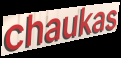
chaukas